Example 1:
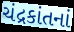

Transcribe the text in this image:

ચંદ્રકાંતનાં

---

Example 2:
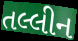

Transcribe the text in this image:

તલ્લીન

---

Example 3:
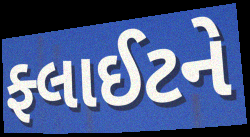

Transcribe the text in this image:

ફ્લાઈટને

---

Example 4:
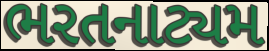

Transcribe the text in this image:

ભરતનાટ્યમ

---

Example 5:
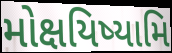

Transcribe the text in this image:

મોક્ષયિષ્યામિ